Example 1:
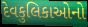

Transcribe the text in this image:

દેવકુલિકાઓનો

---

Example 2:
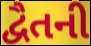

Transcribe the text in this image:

દ્વૈતની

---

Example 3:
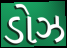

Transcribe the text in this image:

ડોઝ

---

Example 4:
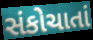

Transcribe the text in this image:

સંકોચાતાં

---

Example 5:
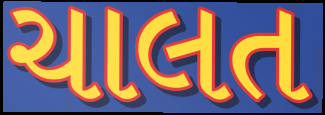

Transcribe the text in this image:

ચાલત